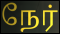
நேர்